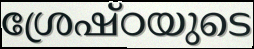
ശ്രേഷ്ഠയുടെ